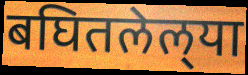
बघितलेल्या